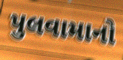
પુલવામાનો